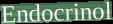
Endocrinol